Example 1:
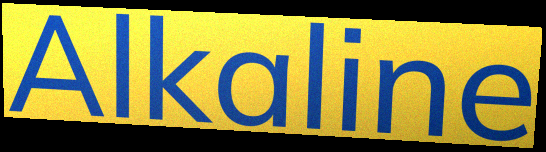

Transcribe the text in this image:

Alkaline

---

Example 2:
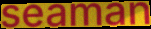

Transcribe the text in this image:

seaman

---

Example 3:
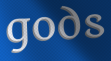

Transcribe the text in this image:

gods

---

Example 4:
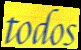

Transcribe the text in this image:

todos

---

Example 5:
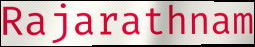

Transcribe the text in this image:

Rajarathnam